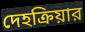
দেহক্রিয়ার